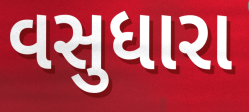
વસુધારા